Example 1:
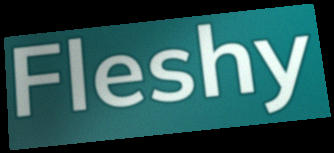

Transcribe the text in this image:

Fleshy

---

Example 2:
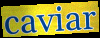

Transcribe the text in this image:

caviar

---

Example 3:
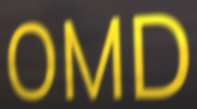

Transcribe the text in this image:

OMD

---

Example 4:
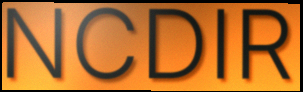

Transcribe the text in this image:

NCDIR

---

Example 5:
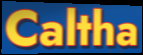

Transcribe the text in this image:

Caltha